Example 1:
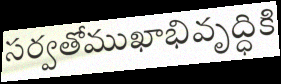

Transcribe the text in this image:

సర్వతోముఖాభివృద్ధికి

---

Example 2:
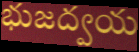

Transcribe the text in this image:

భుజద్వయ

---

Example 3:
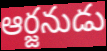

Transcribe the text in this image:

ఆర్జనుడు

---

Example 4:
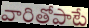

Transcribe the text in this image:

వారితోపాటే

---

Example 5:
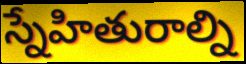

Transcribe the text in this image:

స్నేహితురాల్ని